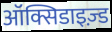
ऑक्सिडाइज़्ड